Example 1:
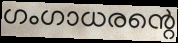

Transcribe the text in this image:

ഗംഗാധരന്റെ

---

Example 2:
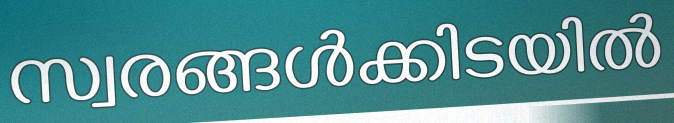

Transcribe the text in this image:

സ്വരങ്ങൾക്കിടയിൽ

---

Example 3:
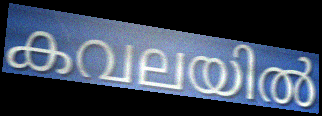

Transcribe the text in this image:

കവലയിൽ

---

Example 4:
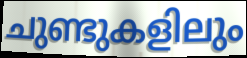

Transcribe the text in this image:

ചുണ്ടുകളിലും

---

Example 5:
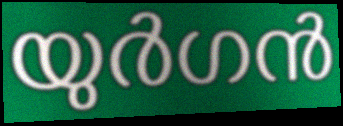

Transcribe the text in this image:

യുർഗൻ